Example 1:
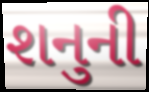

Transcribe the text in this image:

શનુની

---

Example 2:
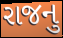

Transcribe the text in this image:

રાજનુ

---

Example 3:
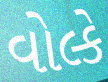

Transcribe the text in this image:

વોલ્કે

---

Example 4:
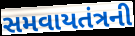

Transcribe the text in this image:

સમવાયતંત્રની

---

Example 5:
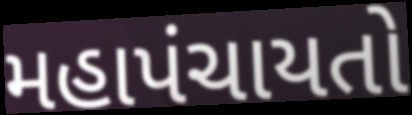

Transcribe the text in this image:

મહાપંચાયતો